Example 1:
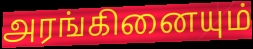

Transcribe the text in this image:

அரங்கினையும்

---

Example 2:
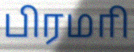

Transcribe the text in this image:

பிரமரி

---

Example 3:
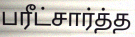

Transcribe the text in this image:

பரீட்சார்த்த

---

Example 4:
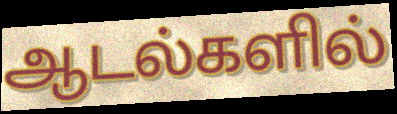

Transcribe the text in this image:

ஆடல்களில்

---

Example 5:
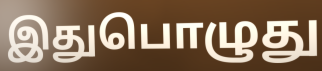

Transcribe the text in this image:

இதுபொழுது